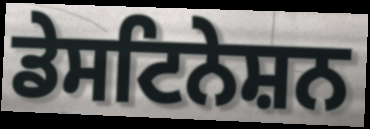
ਡੇਸਟਿਨੇਸ਼ਨ